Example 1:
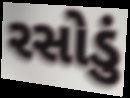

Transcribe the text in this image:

રસોડું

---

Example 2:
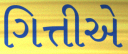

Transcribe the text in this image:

ગિત્તીએ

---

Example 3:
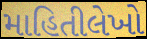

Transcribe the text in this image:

માહિતીલેખો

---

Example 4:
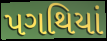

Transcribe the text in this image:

પગથિયાં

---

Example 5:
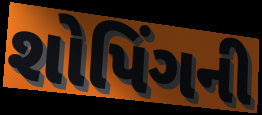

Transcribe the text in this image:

શોપિંગની